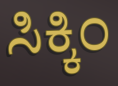
ಸಿಕ್ಕಿಂ